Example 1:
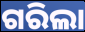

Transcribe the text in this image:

ଗରିଲା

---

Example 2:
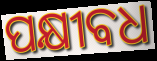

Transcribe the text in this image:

ପକ୍ଷୀବଧ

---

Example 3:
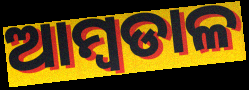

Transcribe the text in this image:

ଆମ୍ବଡାଳ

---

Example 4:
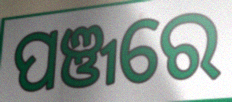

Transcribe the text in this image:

ପଞ୍ଜରେ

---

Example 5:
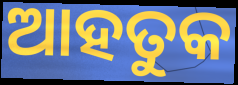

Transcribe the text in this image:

ଆହତୁକ